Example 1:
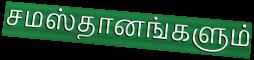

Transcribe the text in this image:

சமஸ்தானங்களும்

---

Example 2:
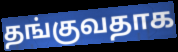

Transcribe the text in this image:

தங்குவதாக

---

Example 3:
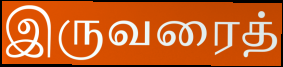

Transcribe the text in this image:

இருவரைத்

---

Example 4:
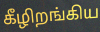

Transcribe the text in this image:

கீழிறங்கிய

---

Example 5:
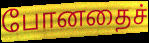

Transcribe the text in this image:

போனதைச்